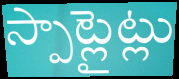
స్పాట్లైట్లు